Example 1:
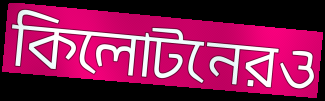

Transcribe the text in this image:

কিলোটনেরও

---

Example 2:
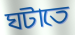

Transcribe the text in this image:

ঘটাতে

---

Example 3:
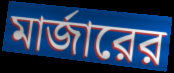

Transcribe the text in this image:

মার্জারের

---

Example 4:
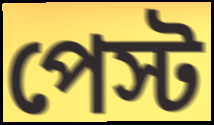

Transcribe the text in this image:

পেস্ট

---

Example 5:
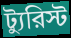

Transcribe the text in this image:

ট্যুরিস্ট